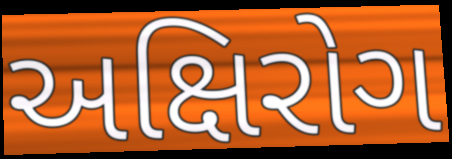
અક્ષિરોગ